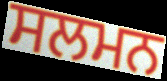
ਸਲਮਨ